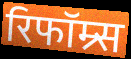
रिफॉम्र्स